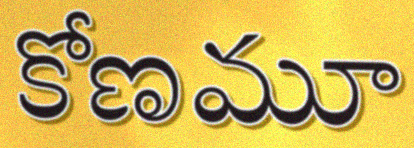
కోణమూ